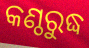
କଣ୍ଠରୁଦ୍ଧ